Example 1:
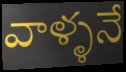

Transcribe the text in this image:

వాళ్ళనే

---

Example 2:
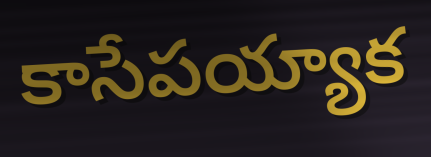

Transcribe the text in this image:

కాసేపయ్యాక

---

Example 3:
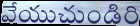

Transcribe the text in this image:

వేయుచుండిరి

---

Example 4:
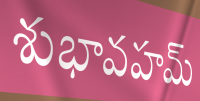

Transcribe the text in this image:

శుభావహమ్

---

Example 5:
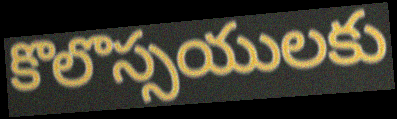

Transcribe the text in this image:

కొలొస్సయులకు